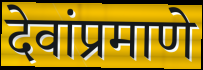
देवांप्रमाणे